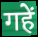
गहें